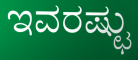
ಇವರಷ್ಟು